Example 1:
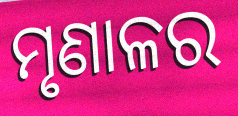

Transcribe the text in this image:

ମୃଣାଳର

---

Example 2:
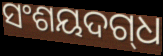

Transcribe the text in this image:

ସଂଶୟଦଗ୍‌ଧ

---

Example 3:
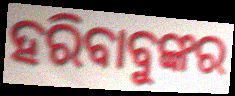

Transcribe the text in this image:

ହରିବାବୁଙ୍କର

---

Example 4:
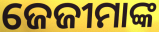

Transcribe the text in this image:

ଜେଜୀମାଙ୍କ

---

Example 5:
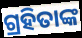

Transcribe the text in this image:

ଗ୍ରହିତାଙ୍କ